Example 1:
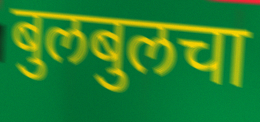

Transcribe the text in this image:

बुलबुलचा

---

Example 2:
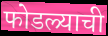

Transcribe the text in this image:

फोडल्याची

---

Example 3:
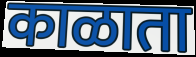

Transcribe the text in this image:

काळाता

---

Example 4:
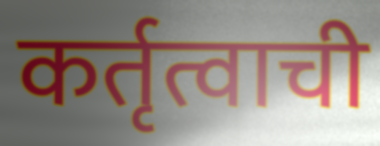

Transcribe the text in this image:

कर्तृत्वाची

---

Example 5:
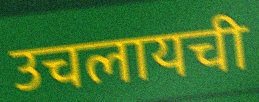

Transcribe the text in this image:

उचलायची